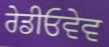
ਰੇਡੀਓਵੇਵ